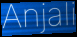
Anjali